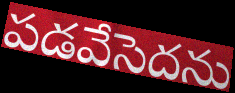
పడవేసెదను